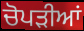
ਚੋਪੜੀਆਂ